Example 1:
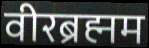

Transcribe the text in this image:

वीरब्रह्मम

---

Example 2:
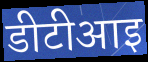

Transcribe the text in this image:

डीटीआइ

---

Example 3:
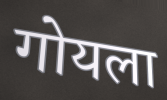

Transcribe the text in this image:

गोयला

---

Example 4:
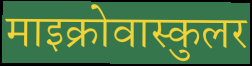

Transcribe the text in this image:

माइक्रोवास्कुलर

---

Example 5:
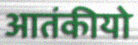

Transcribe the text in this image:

आतंकीयो